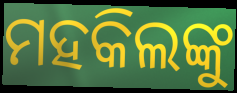
ମହକିଲଙ୍କୁ